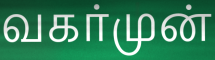
வகர்முன்